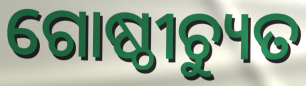
ଗୋଷ୍ଠୀଚ୍ୟୁତ